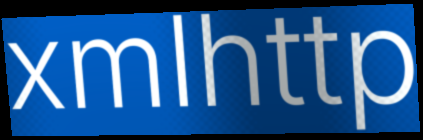
xmlhttp